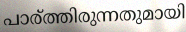
പാര്ത്തിരുന്നതുമായി